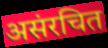
असंरचित